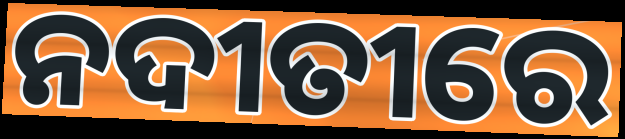
ନଦୀତୀରେ